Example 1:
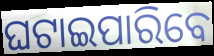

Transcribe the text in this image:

ଘଟାଇପାରିବେ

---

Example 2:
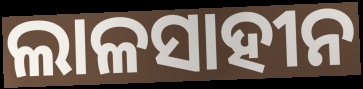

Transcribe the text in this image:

ଲାଳସାହୀନ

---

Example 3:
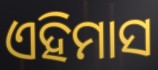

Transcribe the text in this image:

ଏହିମାସ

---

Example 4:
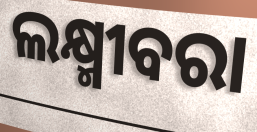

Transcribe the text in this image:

ଲକ୍ଷ୍ମୀବରା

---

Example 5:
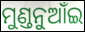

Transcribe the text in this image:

ମୁଣ୍ଡନୁଆଁଇ